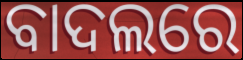
ବାଦଲରେ